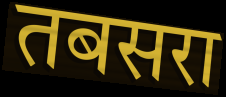
तबसरा